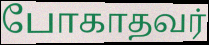
போகாதவர்